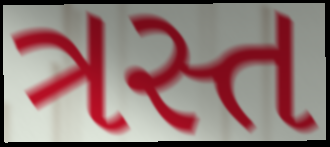
ત્રસ્ત